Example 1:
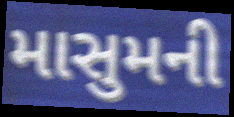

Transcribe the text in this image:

માસુમની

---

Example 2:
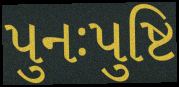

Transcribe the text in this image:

પુનઃપુષ્ટિ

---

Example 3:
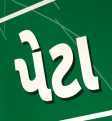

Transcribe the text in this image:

પેટા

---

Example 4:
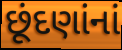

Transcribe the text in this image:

છૂંદણાંનાં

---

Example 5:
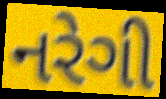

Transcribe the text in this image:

નરેગી